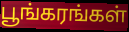
பூங்கரங்கள்